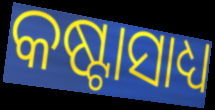
କଷ୍ଟାସାଧ୍ୟ